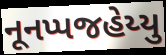
નૂનપ્પજહેય્યુ